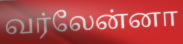
வர்லேன்னா